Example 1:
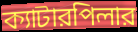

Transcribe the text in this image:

ক্যাটারপিলার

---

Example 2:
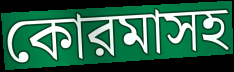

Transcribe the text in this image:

কোরমাসহ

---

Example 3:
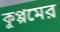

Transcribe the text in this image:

কুপ্পমের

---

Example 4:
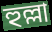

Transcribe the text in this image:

হুল্লা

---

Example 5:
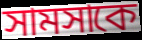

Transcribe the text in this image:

সামসাকে